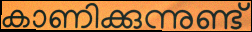
കാണിക്കുന്നുണ്ട്